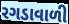
રગડાવાળી